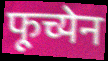
फूच्येन